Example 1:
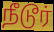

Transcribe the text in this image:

நீடூர்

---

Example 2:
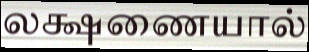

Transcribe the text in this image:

லக்ஷணையால்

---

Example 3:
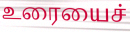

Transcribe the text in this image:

உரையைச்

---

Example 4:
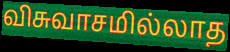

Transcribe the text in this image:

விசுவாசமில்லாத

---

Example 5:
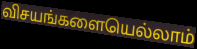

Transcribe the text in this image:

விசயங்களையெல்லாம்